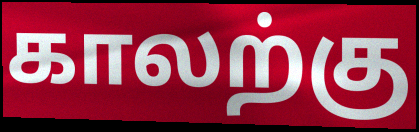
காலற்கு